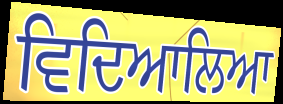
ਵਿਦਿਆਲਿਆ